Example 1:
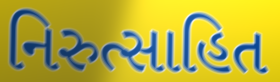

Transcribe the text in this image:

નિરુત્સાહિત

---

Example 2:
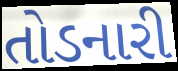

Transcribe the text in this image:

તોડનારી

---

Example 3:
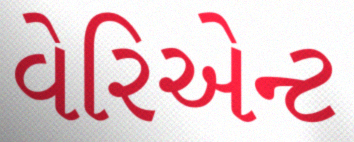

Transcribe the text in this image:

વેરિએન્ટ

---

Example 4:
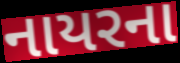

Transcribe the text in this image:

નાયરના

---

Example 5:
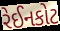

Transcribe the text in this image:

રેઈનકોટ